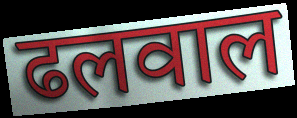
ढलवाल